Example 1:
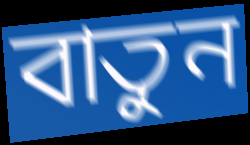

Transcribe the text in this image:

বাতুন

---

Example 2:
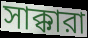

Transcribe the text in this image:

সাক্কারা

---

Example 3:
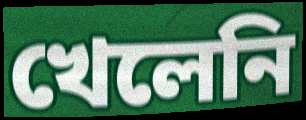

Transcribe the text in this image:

খেলেনি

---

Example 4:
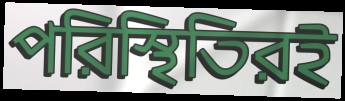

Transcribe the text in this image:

পরিস্থিতিরই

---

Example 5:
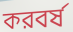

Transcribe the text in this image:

করবর্ষ